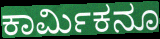
ಕಾರ್ಮಿಕನೂ